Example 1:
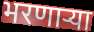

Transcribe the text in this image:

भरणाऱ्या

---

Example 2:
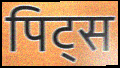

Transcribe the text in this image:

पिट्स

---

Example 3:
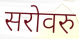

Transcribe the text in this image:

सरोवरु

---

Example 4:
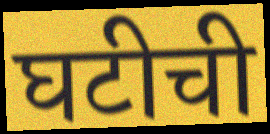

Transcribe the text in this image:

घटीची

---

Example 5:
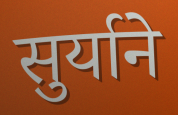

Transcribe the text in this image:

सुर्याने